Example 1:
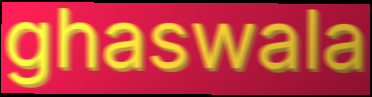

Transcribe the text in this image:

ghaswala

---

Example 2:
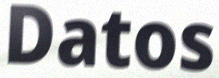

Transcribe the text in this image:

Datos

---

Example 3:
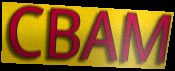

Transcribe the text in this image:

CBAM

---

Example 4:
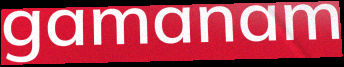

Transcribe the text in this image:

gamanam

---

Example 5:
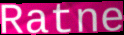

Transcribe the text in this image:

Ratne